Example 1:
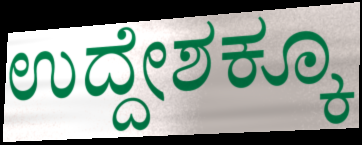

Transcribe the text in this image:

ಉದ್ದೇಶಕ್ಕೂ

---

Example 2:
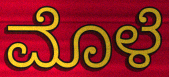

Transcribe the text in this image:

ಮೊಳೆ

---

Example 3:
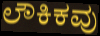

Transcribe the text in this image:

ಲೌಕಿಕವು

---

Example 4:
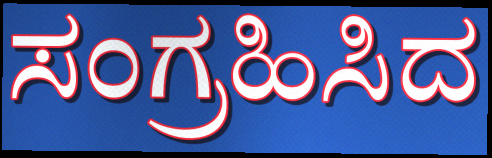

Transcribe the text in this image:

ಸಂಗ್ರಹಿಸಿದ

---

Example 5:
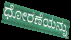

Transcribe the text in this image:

ಧೋರಣೆಯನ್ನು